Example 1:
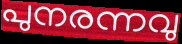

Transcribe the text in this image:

പുനരന്നവു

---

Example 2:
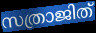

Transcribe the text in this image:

സത്രാജിത്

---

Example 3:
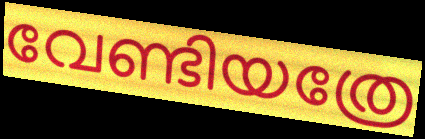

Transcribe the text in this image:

വേണ്ടിയത്രേ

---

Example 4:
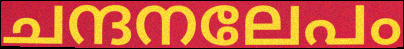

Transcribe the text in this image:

ചന്ദനലേപം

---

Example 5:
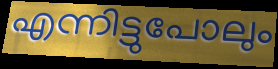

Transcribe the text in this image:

എന്നിട്ടുപോലും